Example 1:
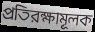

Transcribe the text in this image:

প্রতিরক্ষামূলক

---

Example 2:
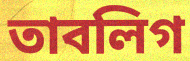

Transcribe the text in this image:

তাবলিগ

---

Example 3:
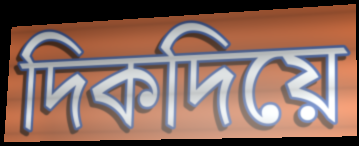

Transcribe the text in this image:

দিকদিয়ে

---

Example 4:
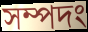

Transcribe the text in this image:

সম্পদং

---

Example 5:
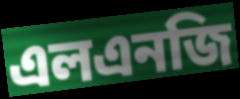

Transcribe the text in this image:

এলএনজি